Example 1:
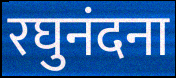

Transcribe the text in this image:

रघुनंदना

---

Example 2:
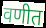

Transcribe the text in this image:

वणीत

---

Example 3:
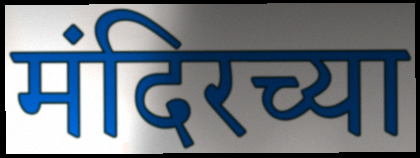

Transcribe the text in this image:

मंदिरच्या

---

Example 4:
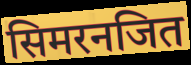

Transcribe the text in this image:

सिमरनजित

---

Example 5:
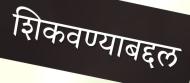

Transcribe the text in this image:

शिकवण्याबद्दल